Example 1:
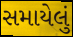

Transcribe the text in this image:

સમાયેલું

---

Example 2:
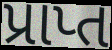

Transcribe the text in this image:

પ્રાપ્ત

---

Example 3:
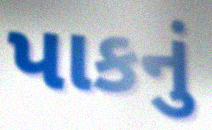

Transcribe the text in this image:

પાકનું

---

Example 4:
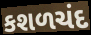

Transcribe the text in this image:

કશળચંદ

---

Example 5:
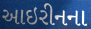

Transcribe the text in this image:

આઇરીનના